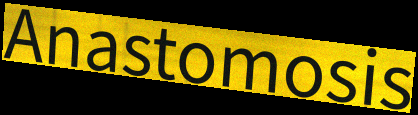
Anastomosis